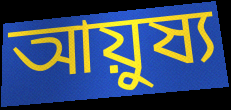
আয়ুষ্য